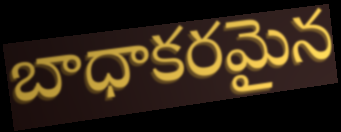
బాధాకరమైన